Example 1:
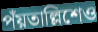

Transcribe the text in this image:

পঁয়তাল্লিশেও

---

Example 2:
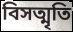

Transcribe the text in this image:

বিসত্মৃতি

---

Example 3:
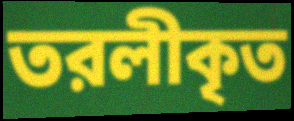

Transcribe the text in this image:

তরলীকৃত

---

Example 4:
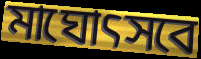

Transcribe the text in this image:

মাঘোৎসবে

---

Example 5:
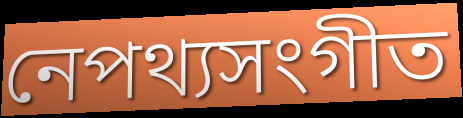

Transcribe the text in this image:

নেপথ্যসংগীত